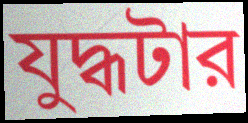
যুদ্ধটার